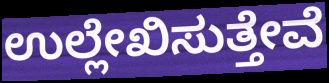
ಉಲ್ಲೇಖಿಸುತ್ತೇವೆ